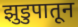
झुडुपातून